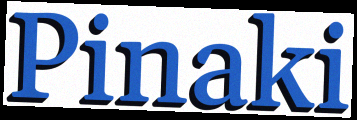
Pinaki